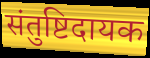
संतुष्टिदायक